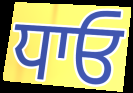
ਧਾਓ